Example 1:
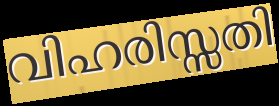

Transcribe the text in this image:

വിഹരിസ്സതി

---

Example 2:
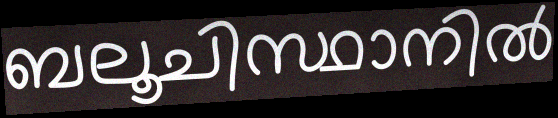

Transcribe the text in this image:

ബലൂചിസ്ഥാനിൽ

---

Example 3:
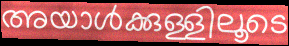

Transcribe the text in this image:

അയാൾക്കുള്ളിലൂടെ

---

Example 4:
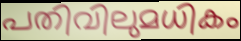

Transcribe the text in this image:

പതിവിലുമധികം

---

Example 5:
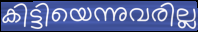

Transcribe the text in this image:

കിട്ടിയെന്നുവരില്ല